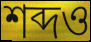
শব্দও